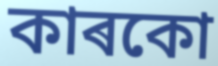
কাৰকো